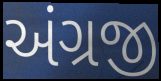
અંગ્રજી